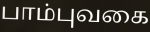
பாம்புவகை